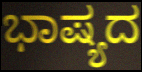
ಭಾಷ್ಯದ